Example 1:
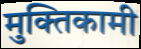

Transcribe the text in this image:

मुक्तिकामी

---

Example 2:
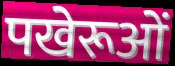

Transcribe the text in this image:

पखेरूओं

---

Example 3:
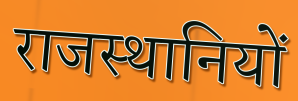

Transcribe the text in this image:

राजस्थानियों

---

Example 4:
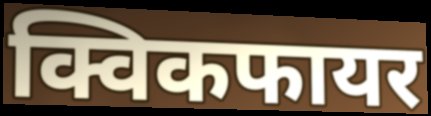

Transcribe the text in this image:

क्विकफायर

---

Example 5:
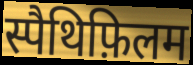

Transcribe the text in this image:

स्पैथिफ़िलम